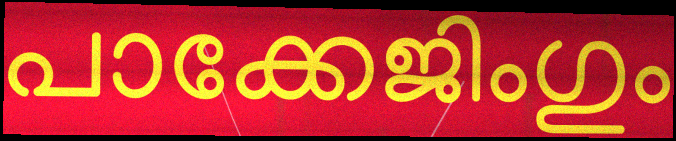
പാക്കേജിംഗും